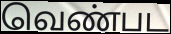
வெண்பட